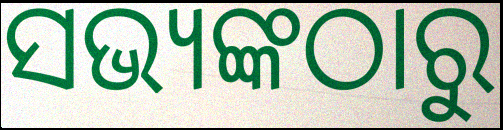
ସଭ୍ୟଙ୍କଠାରୁ